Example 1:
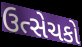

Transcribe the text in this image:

ઉત્સેચકો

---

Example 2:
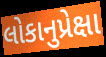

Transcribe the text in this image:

લોકાનુપ્રેક્ષા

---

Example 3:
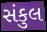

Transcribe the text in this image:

સંકુલ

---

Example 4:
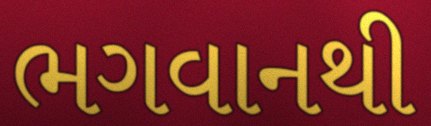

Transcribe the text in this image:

ભગવાનથી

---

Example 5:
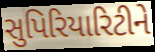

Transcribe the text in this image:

સુપિરિયારિટીને